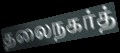
தலைநகர்த்